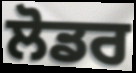
ਲੋਡਰ